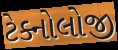
ટેક્નોલોજી